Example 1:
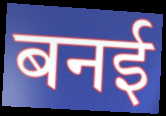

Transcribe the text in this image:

बनई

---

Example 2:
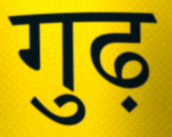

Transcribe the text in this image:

गुढ़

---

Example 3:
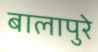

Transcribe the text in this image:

बालापुरे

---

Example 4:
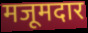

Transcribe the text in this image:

मजूमदार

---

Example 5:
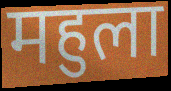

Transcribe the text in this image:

महुला